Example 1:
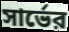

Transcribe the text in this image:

সার্ভের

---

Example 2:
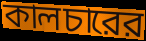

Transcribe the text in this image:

কালচারের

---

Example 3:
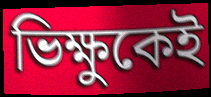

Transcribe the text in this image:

ভিক্ষুকেই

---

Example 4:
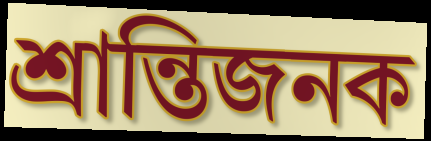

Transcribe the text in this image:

শ্রান্তিজনক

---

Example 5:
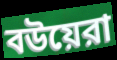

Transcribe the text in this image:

বউয়েরা